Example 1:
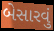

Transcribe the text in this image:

બેસારવું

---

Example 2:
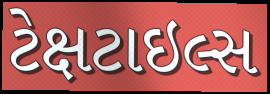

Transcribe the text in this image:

ટેક્ષટાઇલ્સ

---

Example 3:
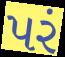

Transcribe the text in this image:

પરં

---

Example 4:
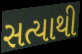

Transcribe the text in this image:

સત્યાથી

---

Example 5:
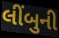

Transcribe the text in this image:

લીંબુની